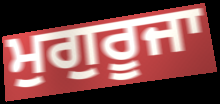
ਮੁਗੁਰੂਜਾ